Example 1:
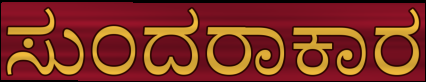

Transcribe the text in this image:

ಸುಂದರಾಕಾರ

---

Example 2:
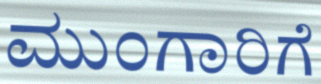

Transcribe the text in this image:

ಮುಂಗಾರಿಗೆ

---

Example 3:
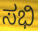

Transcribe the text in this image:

ಸಭಿ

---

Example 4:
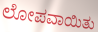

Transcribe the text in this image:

ಲೋಪವಾಯಿತು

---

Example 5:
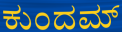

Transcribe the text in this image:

ಕುಂದಮ್